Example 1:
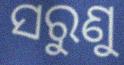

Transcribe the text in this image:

ସରୁଣୁ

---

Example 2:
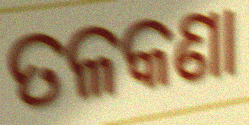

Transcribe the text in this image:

ତଳକଣା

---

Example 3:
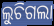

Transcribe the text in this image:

ଲୁଚିଗଲା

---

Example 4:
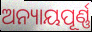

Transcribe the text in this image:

ଅନ୍ୟାୟପୂର୍ଣ୍ଣ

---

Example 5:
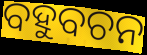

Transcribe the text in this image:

ବହୁବଚନ